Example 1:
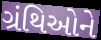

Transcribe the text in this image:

ગ્રંથિઓને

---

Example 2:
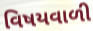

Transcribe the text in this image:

વિષયવાળી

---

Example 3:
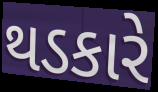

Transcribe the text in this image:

થડકારે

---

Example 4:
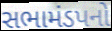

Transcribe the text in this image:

સભામંડપનો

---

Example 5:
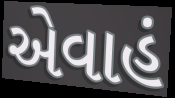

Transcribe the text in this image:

એવાહં